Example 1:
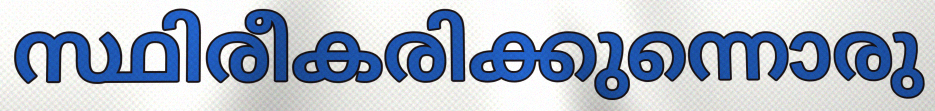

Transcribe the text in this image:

സ്ഥിരീകരിക്കുന്നൊരു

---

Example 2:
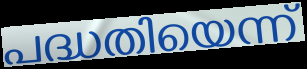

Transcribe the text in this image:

പദ്ധതിയെന്ന്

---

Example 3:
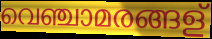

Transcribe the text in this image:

വെഞ്ചാമരങ്ങള്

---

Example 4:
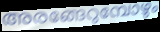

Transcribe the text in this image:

അരങ്ങേറുമ്പോഴും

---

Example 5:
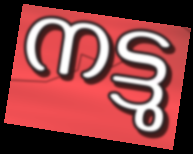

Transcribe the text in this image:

നട്ടു